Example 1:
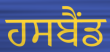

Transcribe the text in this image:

ਹਸਬੈਂਡ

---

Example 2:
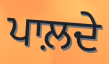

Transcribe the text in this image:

ਪਾਲ਼ਦੇ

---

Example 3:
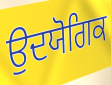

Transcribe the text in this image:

ਉਦਯੋਗਿਕ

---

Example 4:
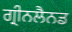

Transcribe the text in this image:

ਗ੍ਰੀਨਲੈਨਡ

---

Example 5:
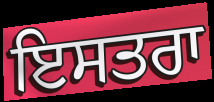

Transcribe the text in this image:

ਇਸਤਰਾ